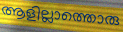
ആളില്ലാത്തൊരു